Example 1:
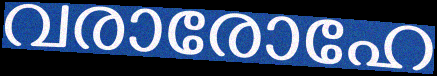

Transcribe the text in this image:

വരാരോഹേ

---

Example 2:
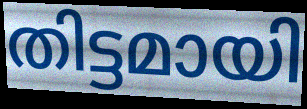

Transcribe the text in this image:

തിട്ടമായി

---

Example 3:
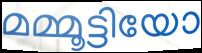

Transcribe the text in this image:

മമ്മൂട്ടിയോ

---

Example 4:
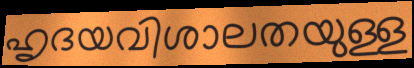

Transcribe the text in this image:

ഹൃദയവിശാലതയുള്ള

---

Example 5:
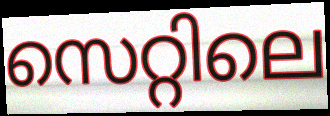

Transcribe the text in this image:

സെറ്റിലെ